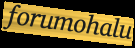
forumohalu